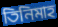
তিনিমাহ